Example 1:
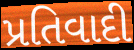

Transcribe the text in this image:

પ્રતિવાદી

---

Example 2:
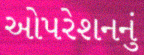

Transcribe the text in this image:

ઓપરેશનનું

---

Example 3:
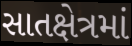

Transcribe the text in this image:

સાતક્ષેત્રમાં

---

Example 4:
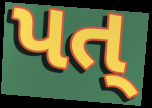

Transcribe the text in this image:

પત્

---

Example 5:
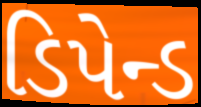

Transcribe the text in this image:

ડિપેન્ડ